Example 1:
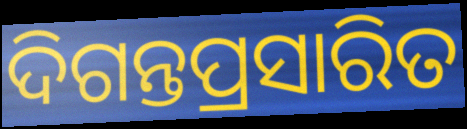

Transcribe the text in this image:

ଦିଗନ୍ତପ୍ରସାରିତ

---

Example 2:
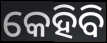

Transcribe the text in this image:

କେହିବି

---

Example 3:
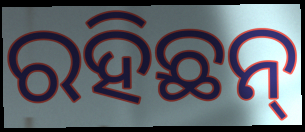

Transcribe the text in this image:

ରହିଛନ୍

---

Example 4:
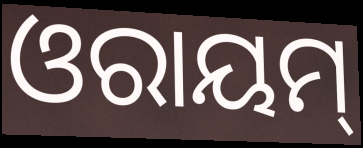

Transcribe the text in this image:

ଓରାୟମ୍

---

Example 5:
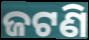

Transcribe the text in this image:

ଜଟଣି